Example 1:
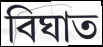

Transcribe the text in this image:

বিঘাত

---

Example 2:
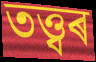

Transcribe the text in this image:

তত্ত্বৰ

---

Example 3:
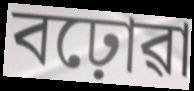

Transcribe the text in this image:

বঢ়োৱা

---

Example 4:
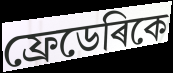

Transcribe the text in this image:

ফ্ৰেডেৰিকে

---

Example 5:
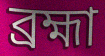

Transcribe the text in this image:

ব্ৰহ্মা